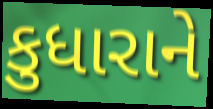
કુધારાને